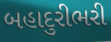
બહાદુરીભરી